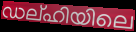
ഡല്ഹിയിലെ